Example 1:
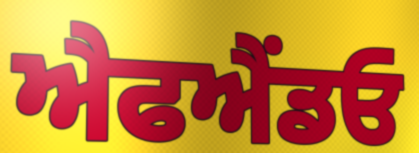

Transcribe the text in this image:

ਐਫਐਂਡਓ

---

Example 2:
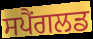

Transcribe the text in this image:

ਸਪੈਂਗਲਡ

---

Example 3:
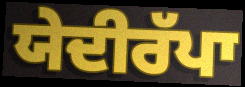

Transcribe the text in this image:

ਯੇਦੀਰੱਪਾ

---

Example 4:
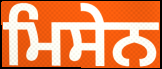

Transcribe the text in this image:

ਮਿਸੇਨ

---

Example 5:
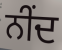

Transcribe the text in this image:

ਨੀਂਦ